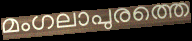
മംഗലാപുരത്തെ